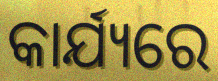
କାର୍ଯ୍ୟରେ